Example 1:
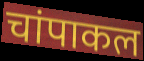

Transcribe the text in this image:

चांपाकल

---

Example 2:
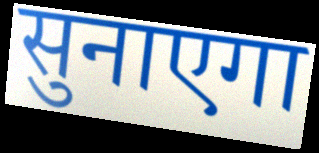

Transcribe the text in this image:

सुनाएगा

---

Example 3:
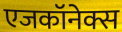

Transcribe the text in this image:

एजकॉनेक्स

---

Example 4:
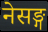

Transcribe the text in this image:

नेसङ्ग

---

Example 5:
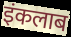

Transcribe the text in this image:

इंकलाब